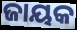
ଜାୟକ